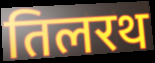
तिलरथ